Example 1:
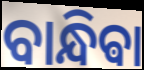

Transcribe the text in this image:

ବାନ୍ଧିଵା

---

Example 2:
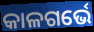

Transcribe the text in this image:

କାଳଗର୍ଭେ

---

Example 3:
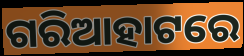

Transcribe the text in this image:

ଗରିଆହାଟରେ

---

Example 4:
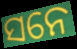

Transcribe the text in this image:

ସନେ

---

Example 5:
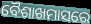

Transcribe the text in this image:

ବୈଶାଖମାସରେ